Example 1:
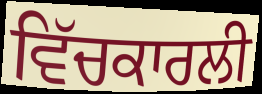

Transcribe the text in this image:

ਵਿੱਚਕਾਰਲੀ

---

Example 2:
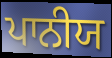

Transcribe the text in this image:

ਪਾਨੀਯ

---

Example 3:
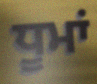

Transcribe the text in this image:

ਧੂਮਾਂ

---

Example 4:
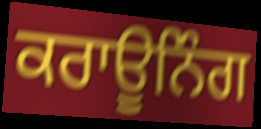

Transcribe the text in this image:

ਕਰਾਊਨਿੰਗ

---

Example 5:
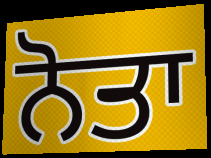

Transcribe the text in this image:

ਨੋਤਾ